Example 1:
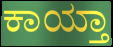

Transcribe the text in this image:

ಕಾಯ್ತಾ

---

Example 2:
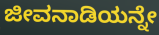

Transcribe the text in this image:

ಜೀವನಾಡಿಯನ್ನೇ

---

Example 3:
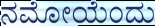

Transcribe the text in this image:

ನಮೋಯೆಂದು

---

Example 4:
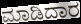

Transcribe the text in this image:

ಮಾಡಿದಾರ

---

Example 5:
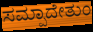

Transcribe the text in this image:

ಸಮ್ಪಾದೇತುಂ